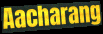
Aacharang